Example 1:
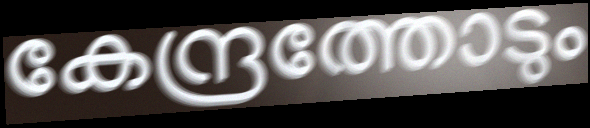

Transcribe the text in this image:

കേന്ദ്രത്തോടും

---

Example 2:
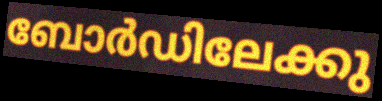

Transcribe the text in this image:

ബോർഡിലേക്കു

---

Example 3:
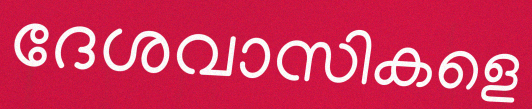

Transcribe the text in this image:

ദേശവാസികളെ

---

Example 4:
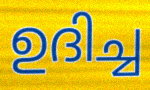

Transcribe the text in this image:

ഉദിച്ച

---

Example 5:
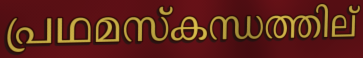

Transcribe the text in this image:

പ്രഥമസ്കന്ധത്തില്